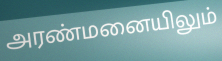
அரண்மனையிலும்